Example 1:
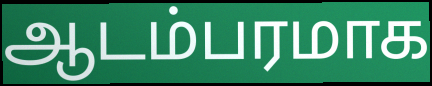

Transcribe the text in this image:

ஆடம்பரமாக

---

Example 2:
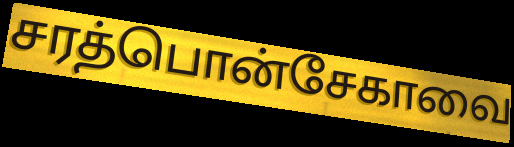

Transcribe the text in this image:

சரத்பொன்சேகாவை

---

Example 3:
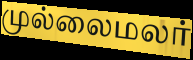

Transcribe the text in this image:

முல்லைமலர்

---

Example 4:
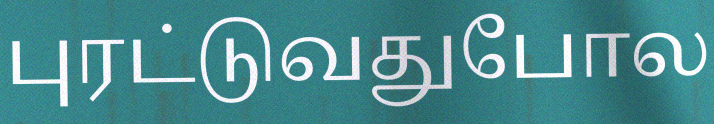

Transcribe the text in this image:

புரட்டுவதுபோல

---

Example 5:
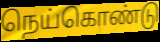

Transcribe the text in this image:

நெய்கொண்டு